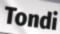
Tondi